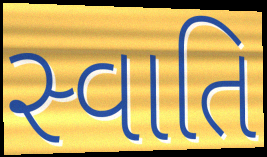
સ્વાતિ